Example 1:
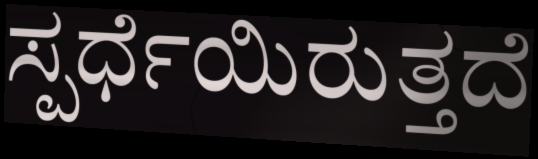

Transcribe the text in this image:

ಸ್ಪರ್ಧೆಯಿರುತ್ತದೆ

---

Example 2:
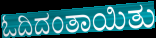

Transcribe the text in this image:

ಓದಿದಂತಾಯಿತು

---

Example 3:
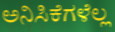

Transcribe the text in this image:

ಅನಿಸಿಕೆಗಳೆಲ್ಲ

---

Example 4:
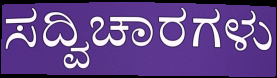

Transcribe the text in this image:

ಸದ್ವಿಚಾರಗಳು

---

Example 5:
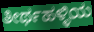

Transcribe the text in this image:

ತೀರ್ಥಹಳ್ಳಿಯ